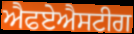
ਐਫਏਐਸਟੀਗ